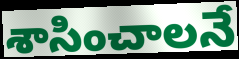
శాసించాలనే